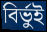
বির্ভুই